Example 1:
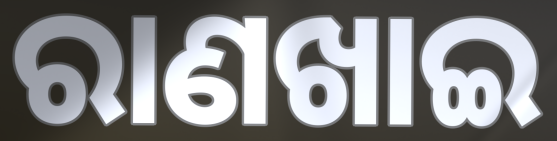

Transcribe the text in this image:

ରାଣଖାଇ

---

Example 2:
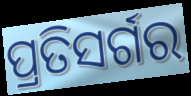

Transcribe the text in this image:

ପ୍ରତିସର୍ଗର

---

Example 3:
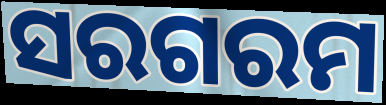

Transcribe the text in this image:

ସରଗରମ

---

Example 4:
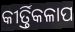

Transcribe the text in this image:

କୀର୍ତ୍ତିକଳାପ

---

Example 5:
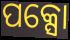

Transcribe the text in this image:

ପକ୍ସୋ